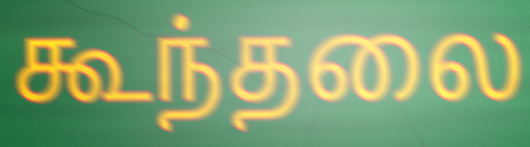
கூந்தலை